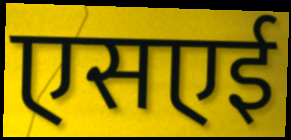
एसएई